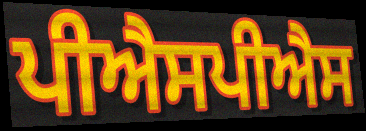
ਪੀਐਸਪੀਐਸ